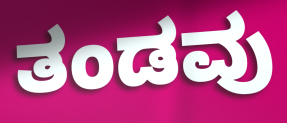
ತಂಡವು